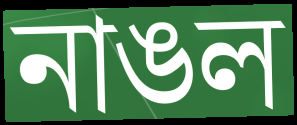
নাঙল